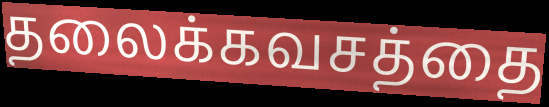
தலைக்கவசத்தை